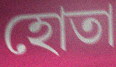
হোতা